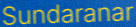
Sundaranar